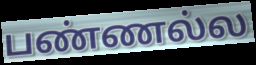
பண்ணல்ல